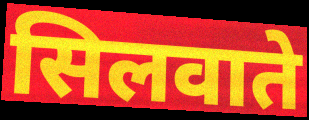
सिलवाते